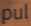
pul